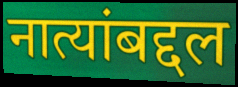
नात्यांबद्दल